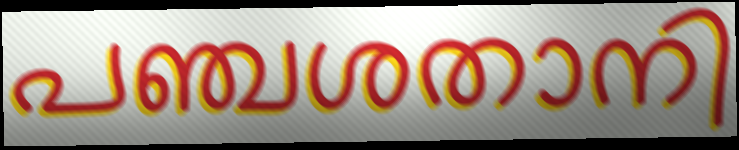
പഞ്ചശതാനി